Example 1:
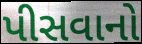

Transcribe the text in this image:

પીસવાનો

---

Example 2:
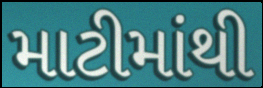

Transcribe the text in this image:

માટીમાંથી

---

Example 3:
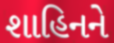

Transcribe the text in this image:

શાહિનને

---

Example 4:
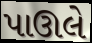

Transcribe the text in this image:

પાઊલે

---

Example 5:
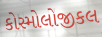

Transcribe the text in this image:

કોસ્મોલોજીકલ